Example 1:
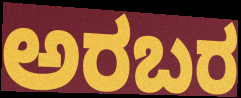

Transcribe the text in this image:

ಅರಬರ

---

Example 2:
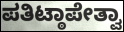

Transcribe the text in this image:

ಪತಿಟ್ಠಾಪೇತ್ವಾ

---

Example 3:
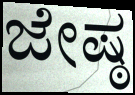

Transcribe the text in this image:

ಜೇಷ್ಠ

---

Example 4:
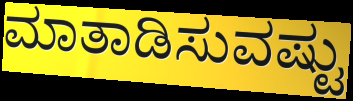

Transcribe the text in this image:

ಮಾತಾಡಿಸುವಷ್ಟು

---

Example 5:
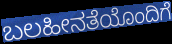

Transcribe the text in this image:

ಬಲಹೀನತೆಯೊಂದಿಗೆ